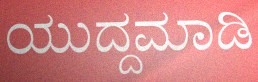
ಯುದ್ದಮಾಡಿ